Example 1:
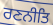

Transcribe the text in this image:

ਰਣਨੀਤਿ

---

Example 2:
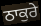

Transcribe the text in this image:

ਠਾਕੁਰੇ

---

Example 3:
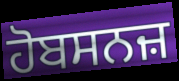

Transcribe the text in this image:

ਹੋਬਸਨਜ਼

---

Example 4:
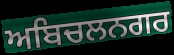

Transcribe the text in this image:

ਅਬਿਚਲਨਗਰ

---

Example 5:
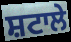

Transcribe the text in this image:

ਸ਼ਟਾਲੇ